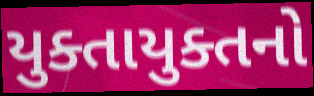
યુક્તાયુક્તનો